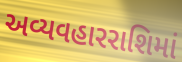
અવ્યવહારરાશિમાં